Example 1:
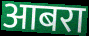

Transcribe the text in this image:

आबरा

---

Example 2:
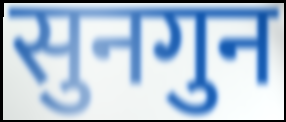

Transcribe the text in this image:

सुनगुन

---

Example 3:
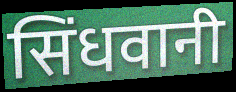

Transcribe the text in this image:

सिंधवानी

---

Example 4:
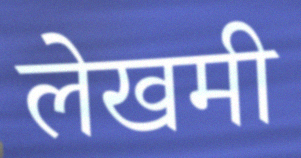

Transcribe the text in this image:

लेखमी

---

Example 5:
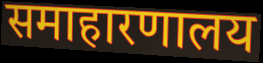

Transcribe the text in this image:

समाहारणालय